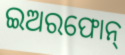
ଇଅରଫୋନ୍